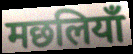
मछलियाँ